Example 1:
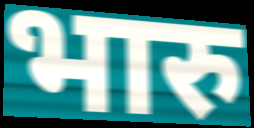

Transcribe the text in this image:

भारु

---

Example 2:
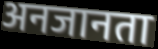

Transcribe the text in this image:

अनजानता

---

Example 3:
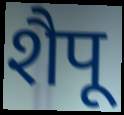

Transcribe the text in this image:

शैपू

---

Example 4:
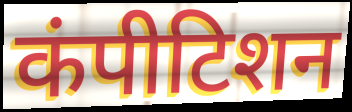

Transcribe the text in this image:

कंपीटिशन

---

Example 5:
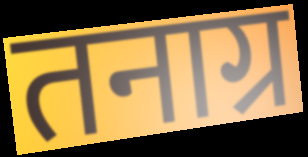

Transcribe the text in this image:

तनाग्र